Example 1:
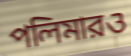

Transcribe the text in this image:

পলিমারও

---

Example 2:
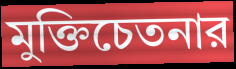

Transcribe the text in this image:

মুক্তিচেতনার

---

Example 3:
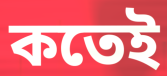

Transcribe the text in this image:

কতেই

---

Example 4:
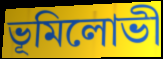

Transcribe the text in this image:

ভূমিলোভী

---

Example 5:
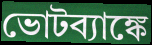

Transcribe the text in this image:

ভোটব্যাঙ্কে